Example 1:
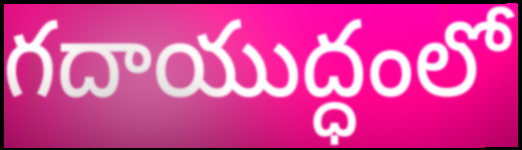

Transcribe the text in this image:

గదాయుద్ధంలో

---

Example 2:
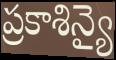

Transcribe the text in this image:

ప్రకాశిన్యై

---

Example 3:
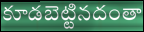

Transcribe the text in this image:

కూడబెట్టినదంతా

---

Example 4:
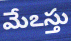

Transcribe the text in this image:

మేఽస్తు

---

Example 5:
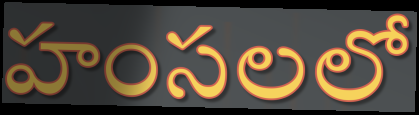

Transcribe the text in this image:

హంసలలో